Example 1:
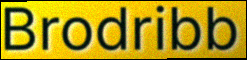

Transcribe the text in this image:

Brodribb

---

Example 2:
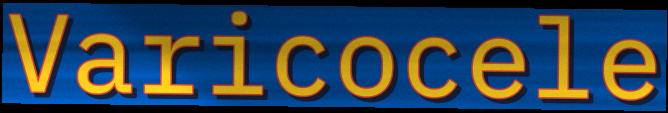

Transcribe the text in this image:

Varicocele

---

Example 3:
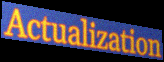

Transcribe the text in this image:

Actualization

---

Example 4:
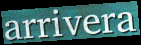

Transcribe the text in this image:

arrivera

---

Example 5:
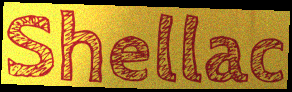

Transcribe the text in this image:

Shellac